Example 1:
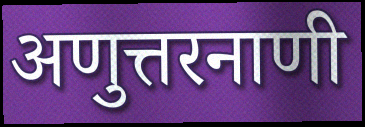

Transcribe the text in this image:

अणुत्तरनाणी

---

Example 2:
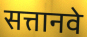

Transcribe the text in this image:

सत्तानवे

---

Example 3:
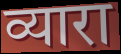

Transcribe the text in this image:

व्यारा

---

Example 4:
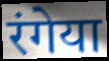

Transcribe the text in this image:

रंगेया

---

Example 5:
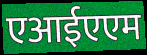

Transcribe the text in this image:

एआईएएम